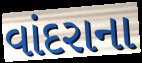
વાંદરાના